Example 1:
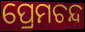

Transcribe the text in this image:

ପ୍ରେମଚନ୍ଦ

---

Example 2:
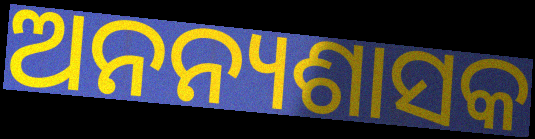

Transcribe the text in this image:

ଅନନ୍ୟଶାସକ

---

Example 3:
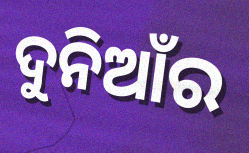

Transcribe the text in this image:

ଦୁନିଆଁର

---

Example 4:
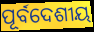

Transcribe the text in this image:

ପୂର୍ବଦେଶୀୟ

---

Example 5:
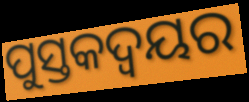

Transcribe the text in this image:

ପୁସ୍ତକଦ୍ୱୟର